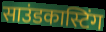
साउंडकास्टिंग